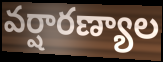
వర్షారణ్యాల